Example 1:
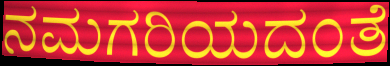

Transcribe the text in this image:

ನಮಗರಿಯದಂತೆ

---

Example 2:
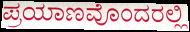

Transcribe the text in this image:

ಪ್ರಯಾಣವೊಂದರಲ್ಲಿ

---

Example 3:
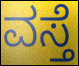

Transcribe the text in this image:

ವಸ್ತೆ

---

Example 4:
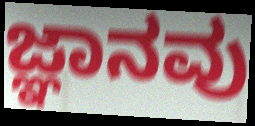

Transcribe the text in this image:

ಜ್ಞಾನವು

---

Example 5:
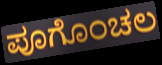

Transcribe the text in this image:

ಪೂಗೊಂಚಲ